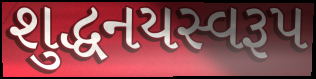
શુદ્ધનયસ્વરૂપ